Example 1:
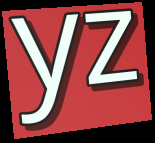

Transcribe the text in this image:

yz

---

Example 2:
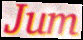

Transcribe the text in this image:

Jum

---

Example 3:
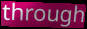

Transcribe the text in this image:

through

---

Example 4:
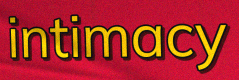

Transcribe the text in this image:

intimacy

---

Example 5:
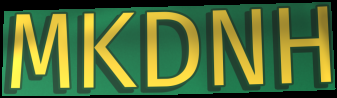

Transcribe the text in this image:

MKDNH